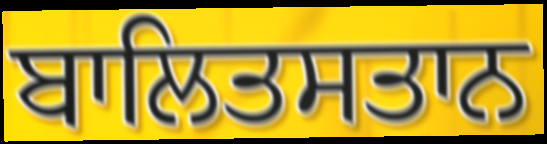
ਬਾਲਿਤਸਤਾਨ